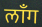
लाँग